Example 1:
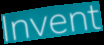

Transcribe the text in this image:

Invent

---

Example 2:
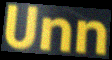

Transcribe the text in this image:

Unn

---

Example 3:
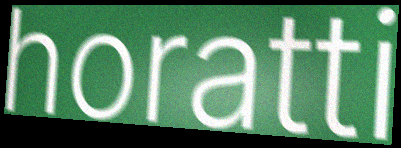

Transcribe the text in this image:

horatti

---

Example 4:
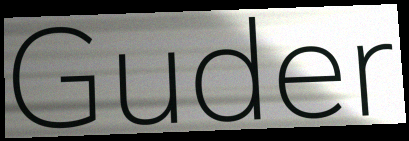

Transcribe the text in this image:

Guder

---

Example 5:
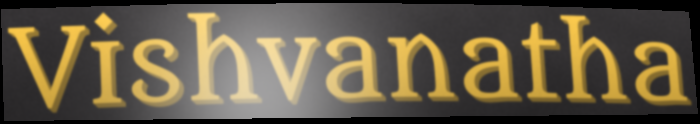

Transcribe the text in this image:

Vishvanatha